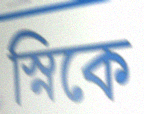
স্নিকে